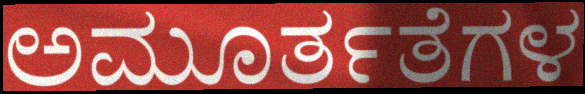
ಅಮೂರ್ತತೆಗಳ